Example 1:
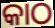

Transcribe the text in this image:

କାଠ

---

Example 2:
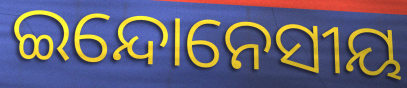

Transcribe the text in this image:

ଇନ୍ଦୋନେସୀୟ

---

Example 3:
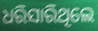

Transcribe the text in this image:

ଧରିସାରିଥିଲେ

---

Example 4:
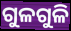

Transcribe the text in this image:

ଗୁଳଗୁଳି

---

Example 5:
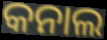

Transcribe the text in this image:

କନାଲ